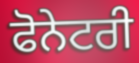
ਫੋਨੇਟਰੀ